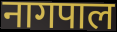
नागपाल